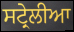
ਸਟ੍ਰੇਲੀਆ